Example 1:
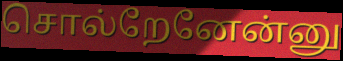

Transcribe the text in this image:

சொல்றேனேன்னு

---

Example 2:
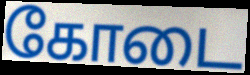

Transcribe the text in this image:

கோடை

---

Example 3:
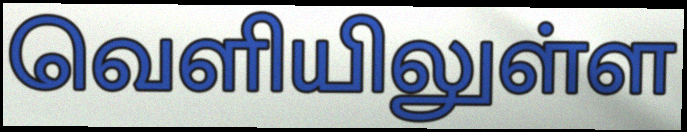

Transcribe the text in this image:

வெளியிலுள்ள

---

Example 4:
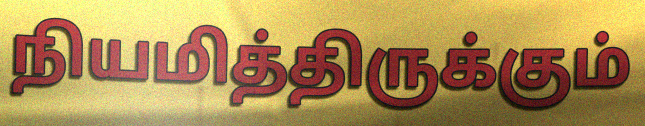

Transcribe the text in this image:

நியமித்திருக்கும்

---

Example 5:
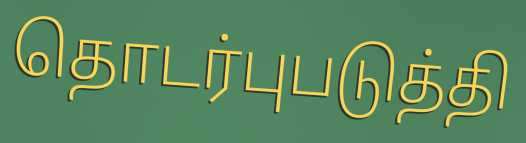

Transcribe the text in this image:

தொடர்புபடுத்தி